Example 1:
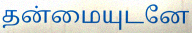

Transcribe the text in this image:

தன்மையுடனே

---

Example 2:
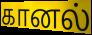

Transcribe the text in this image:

கானல்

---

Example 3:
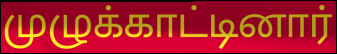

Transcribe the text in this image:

முழுக்காட்டினார்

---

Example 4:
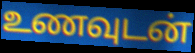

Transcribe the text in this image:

உணவுடன்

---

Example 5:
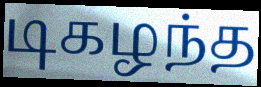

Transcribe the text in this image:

டிகழந்த